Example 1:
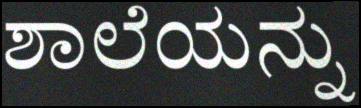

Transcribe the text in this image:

ಶಾಲೆಯನ್ನು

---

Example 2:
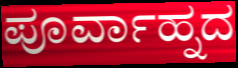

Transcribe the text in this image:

ಪೂರ್ವಾಹ್ನದ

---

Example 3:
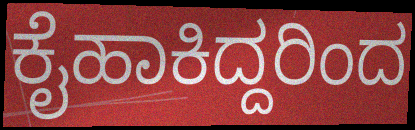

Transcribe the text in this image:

ಕೈಹಾಕಿದ್ದರಿಂದ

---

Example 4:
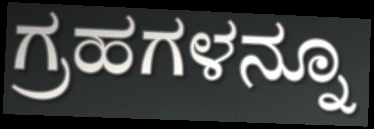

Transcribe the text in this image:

ಗ್ರಹಗಳನ್ನೂ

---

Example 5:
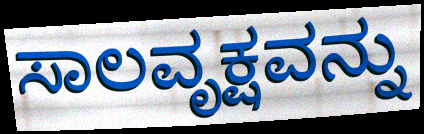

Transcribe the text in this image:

ಸಾಲವೃಕ್ಷವನ್ನು